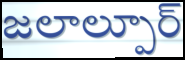
జలాల్పూర్